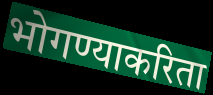
भोगण्याकरिता